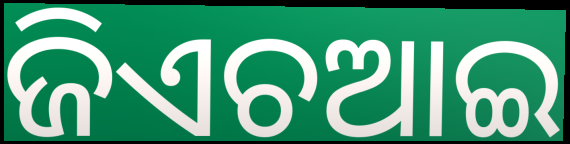
ଜିଏଚଆଇ